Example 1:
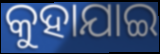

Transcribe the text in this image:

କୁହାଯାଇ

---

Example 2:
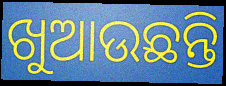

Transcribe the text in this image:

ଖୁଆଉଛନ୍ତି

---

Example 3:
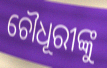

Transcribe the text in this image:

ଚୌଧୂରୀଙ୍କୁ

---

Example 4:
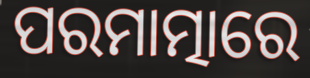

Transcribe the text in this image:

ପରମାତ୍ମାରେ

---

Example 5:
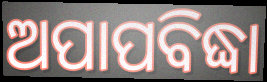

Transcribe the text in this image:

ଅପାପବିଦ୍ଧା